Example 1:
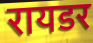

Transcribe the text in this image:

रायडर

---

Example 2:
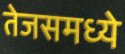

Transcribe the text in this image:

तेजसमध्ये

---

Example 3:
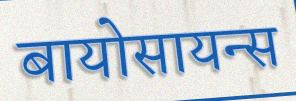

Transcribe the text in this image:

बायोसायन्स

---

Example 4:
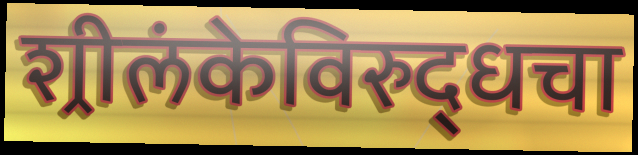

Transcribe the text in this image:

श्रीलंकेविरुद्धचा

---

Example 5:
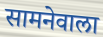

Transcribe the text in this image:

सामनेवाला